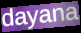
dayana